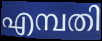
എമ്പതി